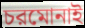
চরমোনাই